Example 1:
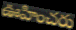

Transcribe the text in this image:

ఊహించరు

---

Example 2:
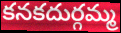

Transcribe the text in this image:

కనకదుర్గమ్మ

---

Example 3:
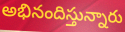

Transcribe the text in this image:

అభినందిస్తున్నారు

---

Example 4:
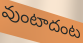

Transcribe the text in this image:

వుంటాదంట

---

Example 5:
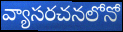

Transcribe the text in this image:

వ్యాసరచనలోనో